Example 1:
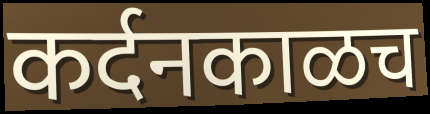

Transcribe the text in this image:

कर्दनकाळच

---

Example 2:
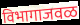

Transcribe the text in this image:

विभागाजवळ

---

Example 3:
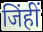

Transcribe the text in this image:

जिंहीं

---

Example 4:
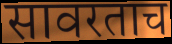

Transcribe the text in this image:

सावरताच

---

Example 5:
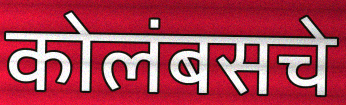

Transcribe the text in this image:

कोलंबसचे